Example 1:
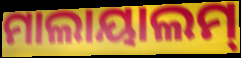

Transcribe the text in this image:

ମାଲାୟାଲମ୍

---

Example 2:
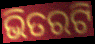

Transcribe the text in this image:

ଭିତରଟି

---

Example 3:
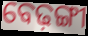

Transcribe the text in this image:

ବେଢ଼ଙ୍ଗୀ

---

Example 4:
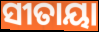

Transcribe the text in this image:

ସୀତାୟା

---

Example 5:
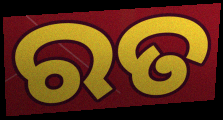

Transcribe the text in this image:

ରତ